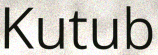
Kutub